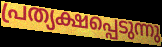
പ്രത്യക്ഷപ്പെടുന്നു